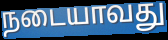
நடையாவது